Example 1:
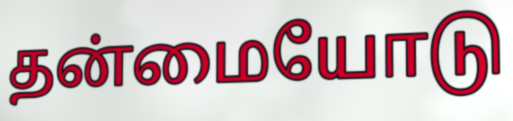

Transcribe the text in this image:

தன்மையோடு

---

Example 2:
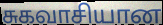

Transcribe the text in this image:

சுகவாசியான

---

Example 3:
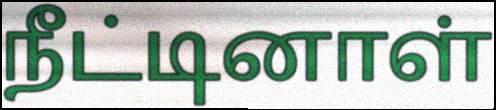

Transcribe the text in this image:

நீட்டினாள்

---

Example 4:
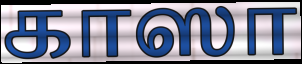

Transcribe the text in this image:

காஸா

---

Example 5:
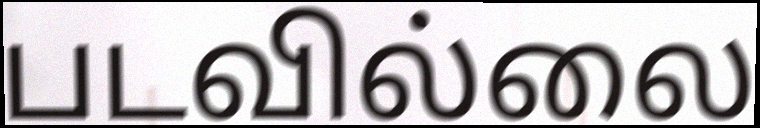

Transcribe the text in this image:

படவில்லை